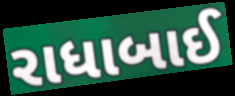
રાધાબાઈ